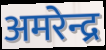
अमरेन्द्र